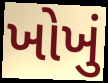
ખોખું